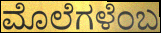
ಮೊಲೆಗಳೆಂಬ